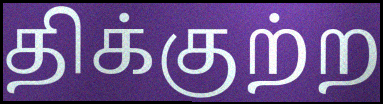
திக்குற்ற